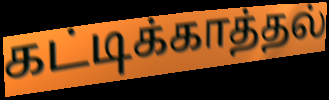
கட்டிக்காத்தல்